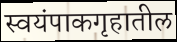
स्वयंपाकगृहातील